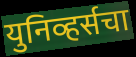
युनिव्हर्सचा